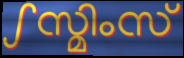
ഽസ്മിംസ്